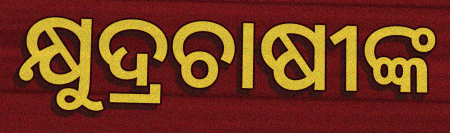
କ୍ଷୁଦ୍ରଚାଷୀଙ୍କ